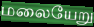
மலையேறு